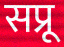
सप्रू